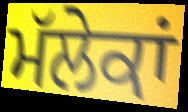
ਮੱਲੇਕਾਂ